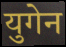
युगेन